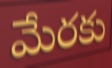
మేరకు